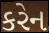
કરેન